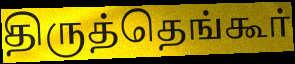
திருத்தெங்கூர்